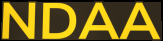
NDAA